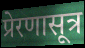
प्रेरणासूत्र